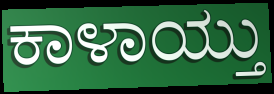
ಕಾಳಾಯ್ತು